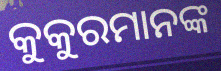
କୁକୁରମାନଙ୍କ